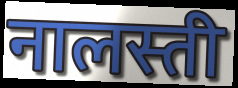
नालस्ती